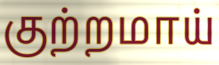
குற்றமாய்